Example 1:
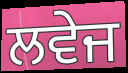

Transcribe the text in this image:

ਲਵੇਜ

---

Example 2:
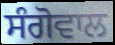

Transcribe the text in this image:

ਸੰਗੋਵਾਲ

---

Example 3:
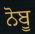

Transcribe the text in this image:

ਨੋਬੂ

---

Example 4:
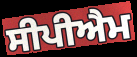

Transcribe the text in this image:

ਸੀਪੀਐਮ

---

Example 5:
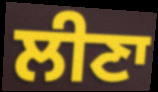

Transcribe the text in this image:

ਲੀਣਾ